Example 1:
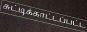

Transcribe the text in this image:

சுட்டிக்காட்டப்பட்ட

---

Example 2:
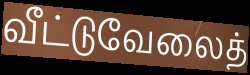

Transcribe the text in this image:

வீட்டுவேலைத்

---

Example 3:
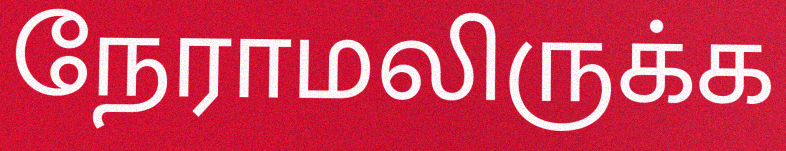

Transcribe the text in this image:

நேராமலிருக்க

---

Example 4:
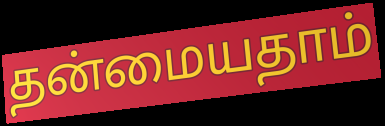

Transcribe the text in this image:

தன்மையதாம்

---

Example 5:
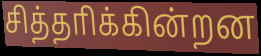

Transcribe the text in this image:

சித்தரிக்கின்றன